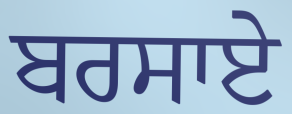
ਬਰਸਾਏ